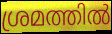
ശ്രമത്തിൽ